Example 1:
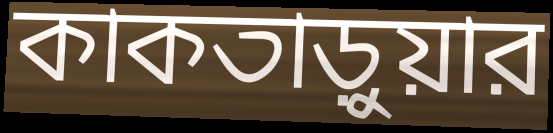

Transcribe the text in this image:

কাকতাড়ুয়ার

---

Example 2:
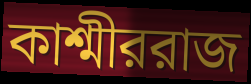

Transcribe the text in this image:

কাশ্মীররাজ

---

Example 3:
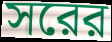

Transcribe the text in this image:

সরের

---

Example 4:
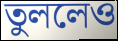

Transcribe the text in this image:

তুললেও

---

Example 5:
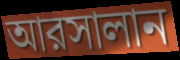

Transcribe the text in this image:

আরসালান